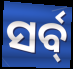
ସର୍ବ୍